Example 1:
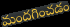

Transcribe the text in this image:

మందగించడం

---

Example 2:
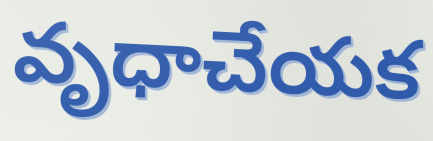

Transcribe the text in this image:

వృధాచేయక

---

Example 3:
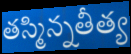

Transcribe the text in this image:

తస్మిన్నతీత్య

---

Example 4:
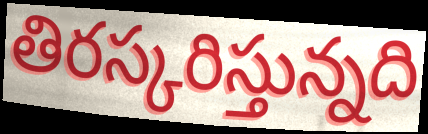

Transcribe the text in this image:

తిరస్కరిస్తున్నది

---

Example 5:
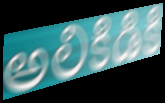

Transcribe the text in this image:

అలికిడికి